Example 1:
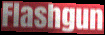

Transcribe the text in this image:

Flashgun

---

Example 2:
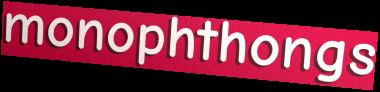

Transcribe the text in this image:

monophthongs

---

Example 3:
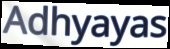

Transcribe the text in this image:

Adhyayas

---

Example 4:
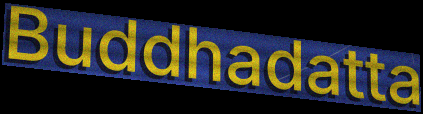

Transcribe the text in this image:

Buddhadatta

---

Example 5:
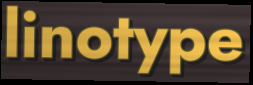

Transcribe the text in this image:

linotype